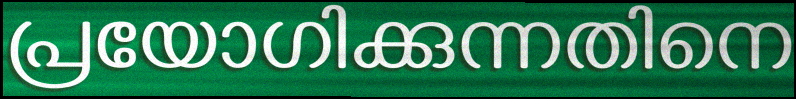
പ്രയോഗിക്കുന്നതിനെ